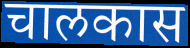
चालकास